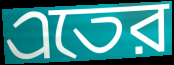
এতের